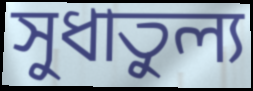
সুধাতুল্য